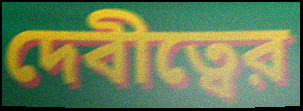
দেবীত্বের